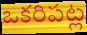
ఒకరిపట్ల